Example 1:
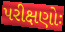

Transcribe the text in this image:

પરીક્ષણોઃ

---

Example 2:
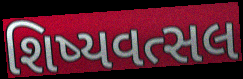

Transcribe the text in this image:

શિષ્યવત્સલ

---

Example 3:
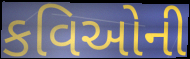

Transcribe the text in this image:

કવિઓની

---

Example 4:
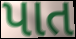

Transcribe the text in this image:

પાત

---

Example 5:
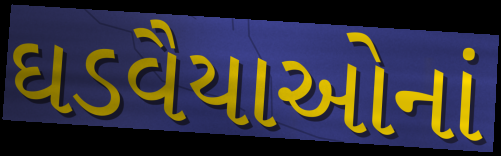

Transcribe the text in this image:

ઘડવૈયાઓનાં